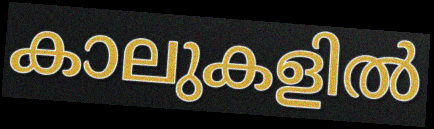
കാലുകളിൽ